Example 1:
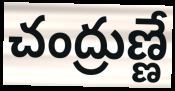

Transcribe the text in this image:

చంద్రుణ్ణే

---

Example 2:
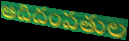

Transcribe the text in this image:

ఆదిదంపతుల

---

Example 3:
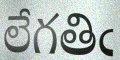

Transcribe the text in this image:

లేగతిఁ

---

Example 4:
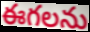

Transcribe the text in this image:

ఈగలను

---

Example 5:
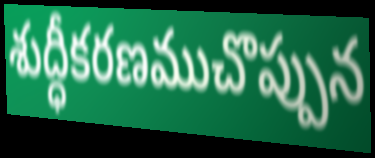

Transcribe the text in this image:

శుద్ధీకరణముచొప్పున